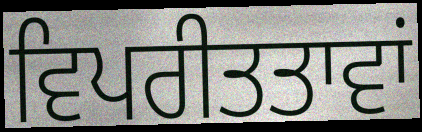
ਵਿਪਰੀਤਤਾਵਾਂ